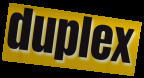
duplex